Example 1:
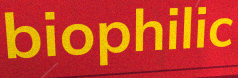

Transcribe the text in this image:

biophilic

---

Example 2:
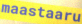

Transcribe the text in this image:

maastaaru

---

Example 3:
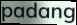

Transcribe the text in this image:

padang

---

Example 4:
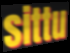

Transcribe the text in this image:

sittu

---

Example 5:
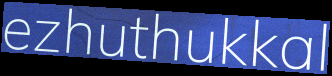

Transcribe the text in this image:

ezhuthukkal